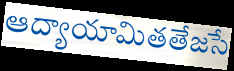
ఆద్యాయామితతేజసే